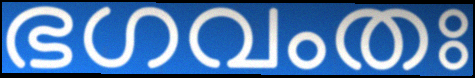
ഭഗവംതഃ